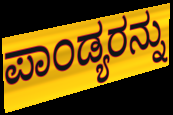
ಪಾಂಡ್ಯರನ್ನು